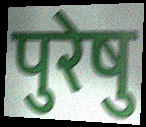
पुरेषु